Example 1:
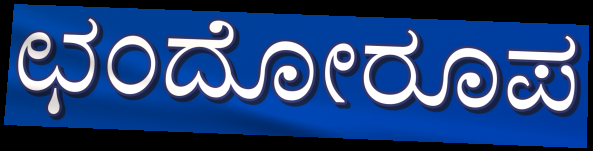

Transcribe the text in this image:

ಛಂದೋರೂಪ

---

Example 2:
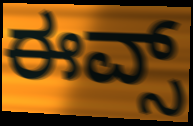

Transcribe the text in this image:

ಈವ್ಸ್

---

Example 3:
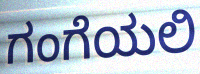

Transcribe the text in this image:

ಗಂಗೆಯಲಿ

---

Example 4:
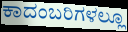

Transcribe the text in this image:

ಕಾದಂಬರಿಗಳಲ್ಲೂ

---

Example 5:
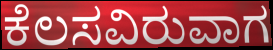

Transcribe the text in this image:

ಕೆಲಸವಿರುವಾಗ